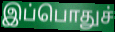
இப்பொதுச்